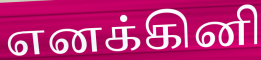
எனக்கினி